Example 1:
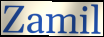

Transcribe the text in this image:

Zamil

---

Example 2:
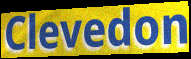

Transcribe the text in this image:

Clevedon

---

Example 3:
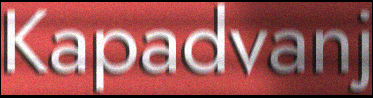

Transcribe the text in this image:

Kapadvanj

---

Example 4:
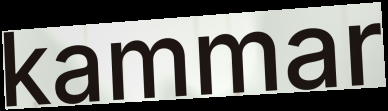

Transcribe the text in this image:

kammar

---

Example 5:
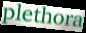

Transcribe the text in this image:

plethora